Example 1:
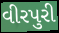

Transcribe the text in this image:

વીરપુરી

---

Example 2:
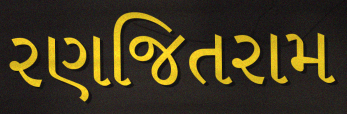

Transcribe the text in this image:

રણજિતરામ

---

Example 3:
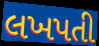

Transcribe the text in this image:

લખપતી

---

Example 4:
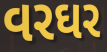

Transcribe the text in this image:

વરઘર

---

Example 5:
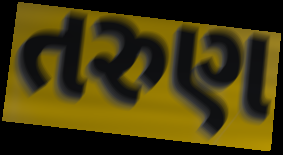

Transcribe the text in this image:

તરુણ